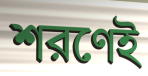
শরণেই